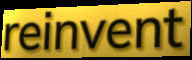
reinvent